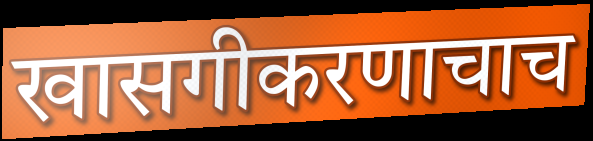
खासगीकरणाचाच